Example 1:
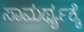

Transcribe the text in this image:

ಸಾಮರ್ಥ್ಯಕ್ಕೆ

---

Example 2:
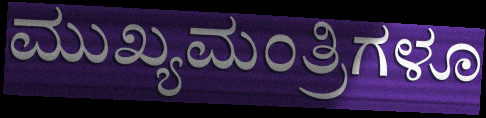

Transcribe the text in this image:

ಮುಖ್ಯಮಂತ್ರಿಗಳೂ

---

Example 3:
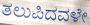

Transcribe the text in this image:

ತಲುಪಿದವಳೇ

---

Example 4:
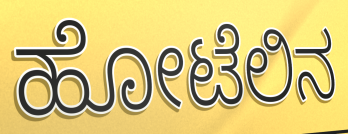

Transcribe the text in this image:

ಹೋಟೆಲಿನ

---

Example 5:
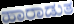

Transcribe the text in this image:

ಹಾರಾಡುತ